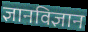
ज्ञानविज्ञान